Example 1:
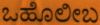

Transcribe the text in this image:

ಒಹೊಲೀಬ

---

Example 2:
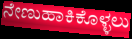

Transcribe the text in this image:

ನೇಣುಹಾಕಿಕೊಳ್ಳಲು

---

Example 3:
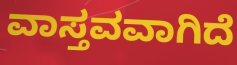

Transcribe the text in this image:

ವಾಸ್ತವವಾಗಿದೆ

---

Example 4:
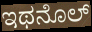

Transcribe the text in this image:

ಇಥನೊಲ್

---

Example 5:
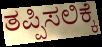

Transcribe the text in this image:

ತಪ್ಪಿಸಲಿಕ್ಕೆ